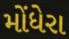
મોંધેરા